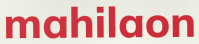
mahilaon